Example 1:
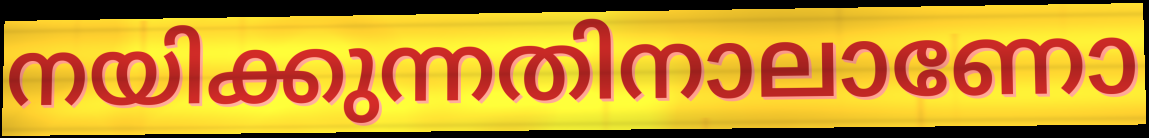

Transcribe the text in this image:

നയിക്കുന്നതിനാലാണോ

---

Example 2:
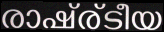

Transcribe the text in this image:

രാഷ്ര്ടീയ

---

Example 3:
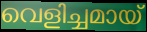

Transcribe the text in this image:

വെളിച്ചമായ്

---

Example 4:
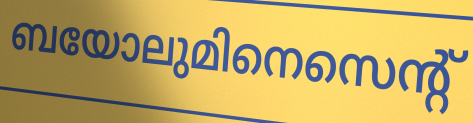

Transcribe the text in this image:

ബയോലുമിനെസെന്റ്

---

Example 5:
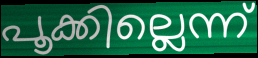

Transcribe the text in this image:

പൂക്കില്ലെന്ന്